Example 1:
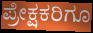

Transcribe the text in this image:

ಪ್ರೇಕ್ಷಕರಿಗೂ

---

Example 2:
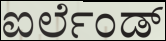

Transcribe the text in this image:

ಐರ್ಲೆಂಡ್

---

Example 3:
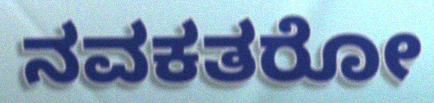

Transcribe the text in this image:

ನವಕತರೋ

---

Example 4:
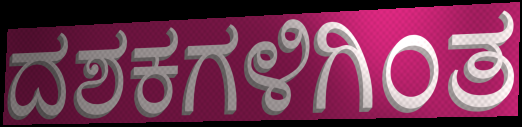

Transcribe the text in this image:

ದಶಕಗಳಿಗಿಂತ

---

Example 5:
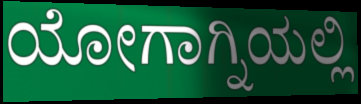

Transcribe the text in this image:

ಯೋಗಾಗ್ನಿಯಲ್ಲಿ